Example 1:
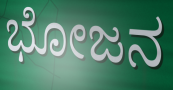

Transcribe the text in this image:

ಭೋಜನ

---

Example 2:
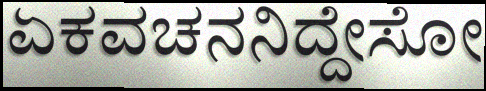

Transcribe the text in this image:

ಏಕವಚನನಿದ್ದೇಸೋ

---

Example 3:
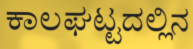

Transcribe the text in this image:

ಕಾಲಘಟ್ಟದಲ್ಲಿನ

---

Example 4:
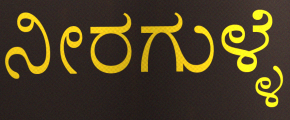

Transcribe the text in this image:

ನೀರಗುಳ್ಳೆ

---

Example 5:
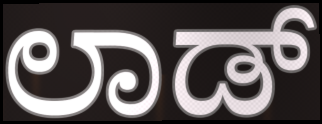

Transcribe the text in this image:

ಲಾಡ್